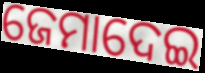
ଜେମାଦେଇ